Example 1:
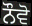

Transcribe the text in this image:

ਨੌਵੋ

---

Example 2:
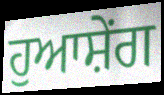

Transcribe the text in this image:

ਹੁਆਸ਼ੇਂਗ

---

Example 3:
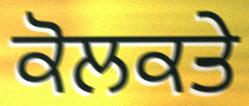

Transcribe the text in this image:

ਕੋਲਕਤੇ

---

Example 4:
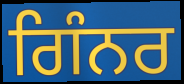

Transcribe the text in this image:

ਗਿੰਨਰ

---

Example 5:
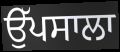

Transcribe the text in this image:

ਉੱਪਸਾਲਾ